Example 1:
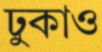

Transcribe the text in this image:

ঢুকাও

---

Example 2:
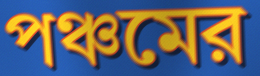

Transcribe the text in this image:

পঞ্চমের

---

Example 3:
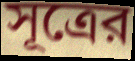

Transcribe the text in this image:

সূত্রের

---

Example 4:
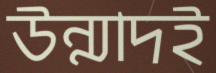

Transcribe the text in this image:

উন্মাদই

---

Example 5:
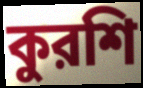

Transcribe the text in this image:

কুরশি